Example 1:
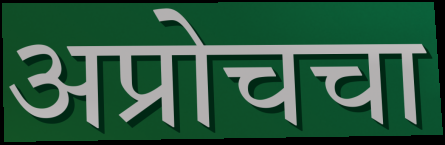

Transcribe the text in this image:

अप्रोचचा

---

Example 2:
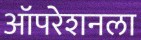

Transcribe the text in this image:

ऑपरेशनला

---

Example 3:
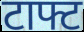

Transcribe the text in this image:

टाफ्ट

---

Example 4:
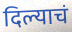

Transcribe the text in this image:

दिल्याचं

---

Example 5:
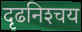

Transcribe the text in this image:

दृढनिश्‍चय